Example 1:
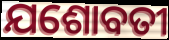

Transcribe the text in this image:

ଯଶୋବତୀ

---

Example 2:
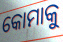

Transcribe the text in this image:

କୋମାକୁ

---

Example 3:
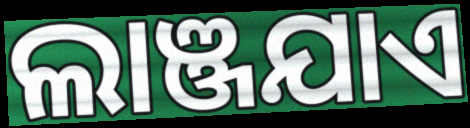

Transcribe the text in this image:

ଲାଞ୍ଜଯାଏ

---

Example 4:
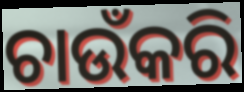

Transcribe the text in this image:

ଚାଉଁକରି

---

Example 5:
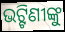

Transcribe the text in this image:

ଭଟ୍ଟିଣୀଙ୍କୁ